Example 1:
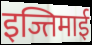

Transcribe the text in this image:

इज्तिमाई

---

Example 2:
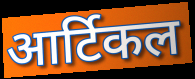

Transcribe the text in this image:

आर्टिकल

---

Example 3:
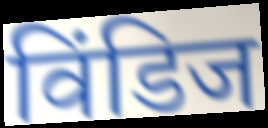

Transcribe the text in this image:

विंडिज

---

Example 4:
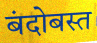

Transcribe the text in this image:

बंदोबस्त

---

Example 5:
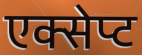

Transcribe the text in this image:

एक्सेप्ट